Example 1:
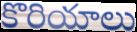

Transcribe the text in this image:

కొరియాలు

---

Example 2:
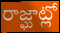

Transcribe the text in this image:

రాజ్ఘాట్లో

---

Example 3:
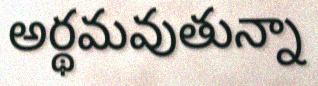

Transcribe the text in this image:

అర్థమవుతున్నా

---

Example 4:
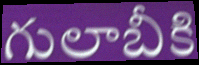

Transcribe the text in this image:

గులాబీకి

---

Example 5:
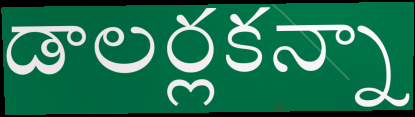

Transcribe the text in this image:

డాలర్లకన్నా